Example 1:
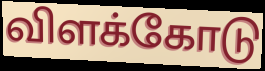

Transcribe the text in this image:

விளக்கோடு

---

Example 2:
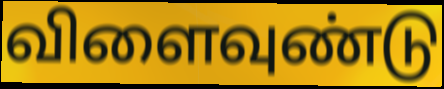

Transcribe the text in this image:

விளைவுண்டு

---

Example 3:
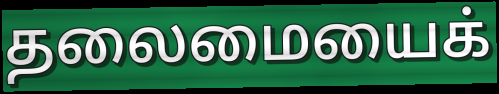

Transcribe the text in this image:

தலைமையைக்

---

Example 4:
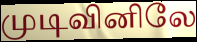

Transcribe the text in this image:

முடிவினிலே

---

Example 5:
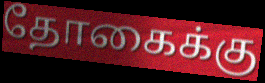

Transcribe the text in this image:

தோகைக்கு